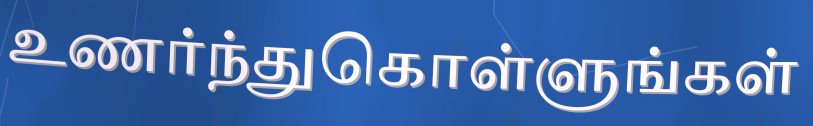
உணர்ந்துகொள்ளுங்கள்